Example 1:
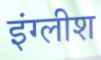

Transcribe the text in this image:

इंग्लीश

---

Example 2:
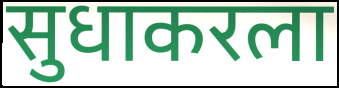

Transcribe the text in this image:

सुधाकरला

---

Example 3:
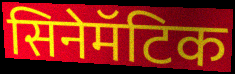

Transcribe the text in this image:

सिनेमॅटिक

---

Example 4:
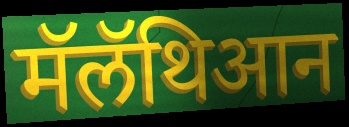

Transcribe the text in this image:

मॅलॅथिआन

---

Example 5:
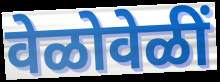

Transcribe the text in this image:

वेळोवेळीं